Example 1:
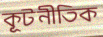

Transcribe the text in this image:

কূটনীতিক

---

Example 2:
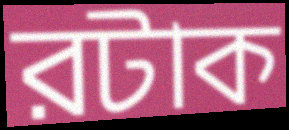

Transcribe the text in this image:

রটাক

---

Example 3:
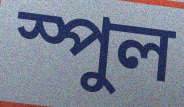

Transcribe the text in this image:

স্পুল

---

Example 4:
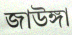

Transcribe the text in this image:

জাউঙ্গা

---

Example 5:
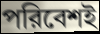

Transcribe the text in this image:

পরিবেশই